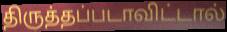
திருத்தப்படாவிட்டால்